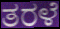
ತರಳೆ